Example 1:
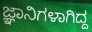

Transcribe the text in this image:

ಜ್ಞಾನಿಗಳಾಗಿದ್ದ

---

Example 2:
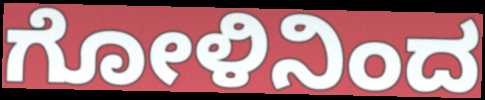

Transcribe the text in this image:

ಗೋಳಿನಿಂದ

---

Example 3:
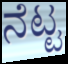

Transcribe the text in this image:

ನೆಟ್ಟ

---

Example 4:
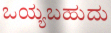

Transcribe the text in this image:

ಒಯ್ಯಬಹುದು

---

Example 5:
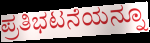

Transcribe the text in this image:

ಪ್ರತಿಭಟನೆಯನ್ನೂ